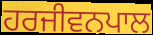
ਹਰਜੀਵਨਪਾਲ